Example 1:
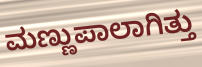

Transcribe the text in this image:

ಮಣ್ಣುಪಾಲಾಗಿತ್ತು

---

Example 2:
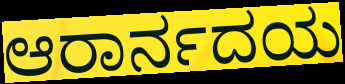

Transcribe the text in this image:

ಆರಾರ್ನದಯ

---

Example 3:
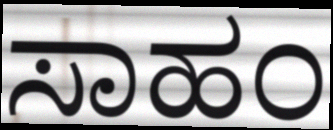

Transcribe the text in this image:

ಸಾಹಂ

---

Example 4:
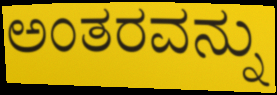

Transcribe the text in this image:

ಅಂತರವನ್ನು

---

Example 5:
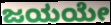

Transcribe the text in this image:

ಜಯಯೇ